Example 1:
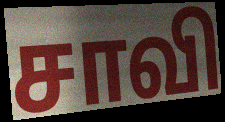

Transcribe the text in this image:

சாவி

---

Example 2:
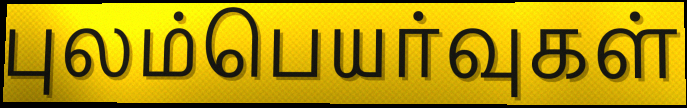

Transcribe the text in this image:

புலம்பெயர்வுகள்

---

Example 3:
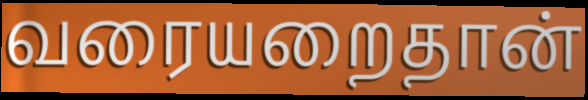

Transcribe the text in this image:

வரையறைதான்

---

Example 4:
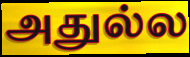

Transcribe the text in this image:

அதுல்ல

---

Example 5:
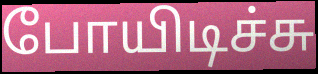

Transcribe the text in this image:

போயிடிச்சு